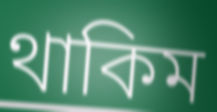
থাকিম